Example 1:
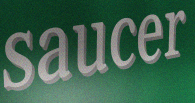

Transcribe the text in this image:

saucer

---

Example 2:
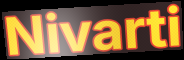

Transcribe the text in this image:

Nivarti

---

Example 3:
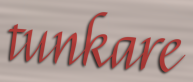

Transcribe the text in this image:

tunkare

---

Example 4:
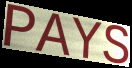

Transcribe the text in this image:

PAYS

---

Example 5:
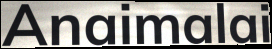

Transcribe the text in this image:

Anaimalai